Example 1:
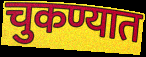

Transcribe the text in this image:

चुकण्यात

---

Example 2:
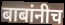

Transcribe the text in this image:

बाबांनीच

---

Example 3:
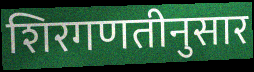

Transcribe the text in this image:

शिरगणतीनुसार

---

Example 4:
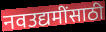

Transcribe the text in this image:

नवउद्यमींसाठी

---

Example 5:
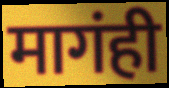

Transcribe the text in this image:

मागंही